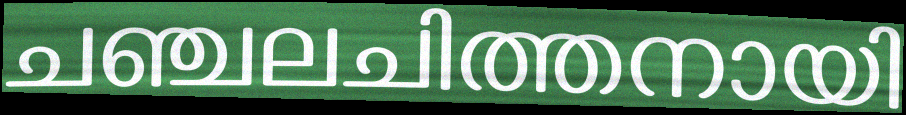
ചഞ്ചലചിത്തനായി